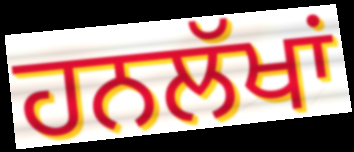
ਹਨਲੱਖਾਂ